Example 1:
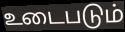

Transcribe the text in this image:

உடைபடும்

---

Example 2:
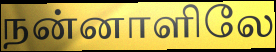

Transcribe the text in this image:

நன்னாளிலே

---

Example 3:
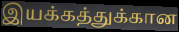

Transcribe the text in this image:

இயக்கத்துக்கான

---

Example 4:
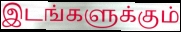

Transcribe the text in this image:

இடங்களுக்கும்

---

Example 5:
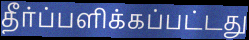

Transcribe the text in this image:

தீர்ப்பளிக்கப்பட்டது